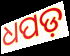
ଧପଡ଼